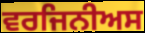
ਵਰਜਿਨੀਅਸ